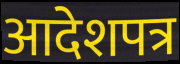
आदेशपत्र